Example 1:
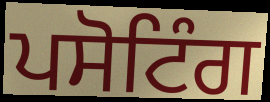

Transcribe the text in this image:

ਪਸੋਟਿੰਗ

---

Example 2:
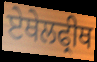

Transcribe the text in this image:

ਏਥੇਲਫ੍ਰੀਥ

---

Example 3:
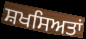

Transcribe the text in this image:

ਸ਼ਖਸਿਅਤਾਂ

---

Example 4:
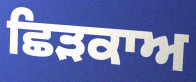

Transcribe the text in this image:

ਛਿੜਕਾਅ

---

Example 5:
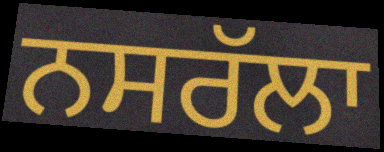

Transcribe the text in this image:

ਨਸਰੱਲਾ